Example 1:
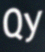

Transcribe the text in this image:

Qy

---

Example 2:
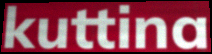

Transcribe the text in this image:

kuttina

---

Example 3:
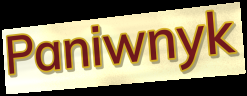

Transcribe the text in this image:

Paniwnyk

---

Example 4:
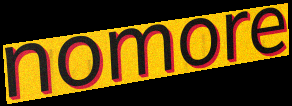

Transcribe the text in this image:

nomore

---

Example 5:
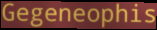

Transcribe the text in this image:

Gegeneophis